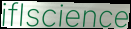
iflscience